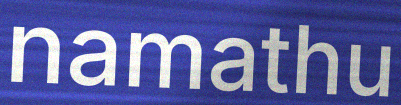
namathu